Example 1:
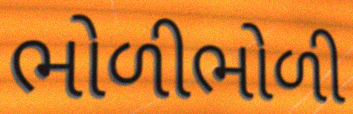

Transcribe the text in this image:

ભોળીભોળી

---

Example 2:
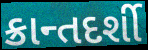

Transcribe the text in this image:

ક્રાન્તદર્શી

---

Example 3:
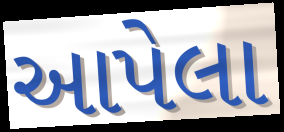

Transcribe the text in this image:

આપેલા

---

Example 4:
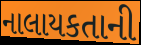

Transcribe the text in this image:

નાલાયકતાની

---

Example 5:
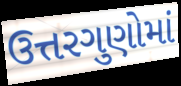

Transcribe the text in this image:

ઉત્તરગુણોમાં